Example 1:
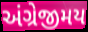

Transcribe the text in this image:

અંગ્રેજીમય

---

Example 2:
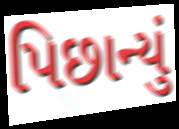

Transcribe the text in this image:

પિછાન્યું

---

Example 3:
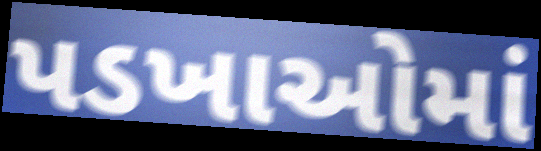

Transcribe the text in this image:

પડખાઓમાં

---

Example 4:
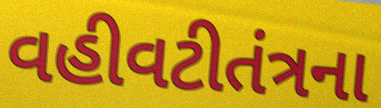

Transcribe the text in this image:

વહીવટીતંત્રના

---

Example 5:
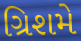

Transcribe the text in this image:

ગ્રિશમે